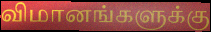
விமானங்களுக்கு